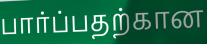
பார்ப்பதற்கான